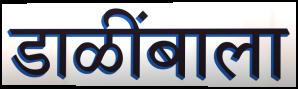
डाळींबाला